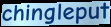
chingleput